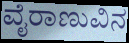
ವೈರಾಣುವಿನ